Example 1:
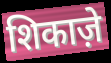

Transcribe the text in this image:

शिकाज़े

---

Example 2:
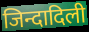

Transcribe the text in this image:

जिन्दादिली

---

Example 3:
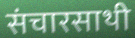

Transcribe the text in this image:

संचारसाथी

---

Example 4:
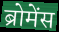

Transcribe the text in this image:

ब्रोमेंस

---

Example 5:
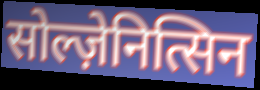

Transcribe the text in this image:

सोल्ज़ेनित्सिन